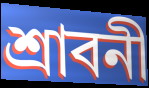
শ্রাবনী